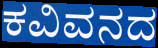
ಕವಿವನದ